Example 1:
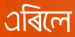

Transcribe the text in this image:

এৰিলে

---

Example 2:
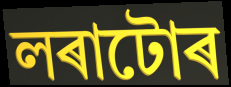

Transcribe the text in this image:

লৰাটোৰ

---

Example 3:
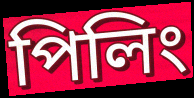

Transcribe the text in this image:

পিলিং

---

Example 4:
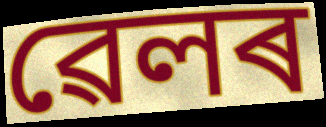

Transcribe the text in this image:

ৱেলৰ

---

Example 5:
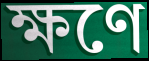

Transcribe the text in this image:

ক্ষণে